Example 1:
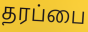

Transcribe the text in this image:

தரப்பை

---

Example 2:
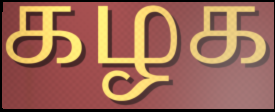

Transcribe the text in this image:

கழக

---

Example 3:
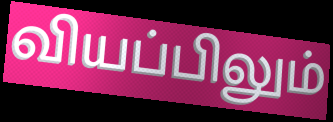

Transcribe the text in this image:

வியப்பிலும்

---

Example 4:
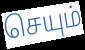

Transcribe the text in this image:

செயும்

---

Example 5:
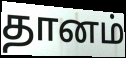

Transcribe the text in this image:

தானம்